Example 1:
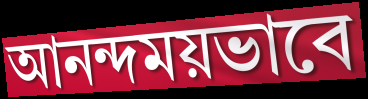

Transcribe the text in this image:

আনন্দময়ভাবে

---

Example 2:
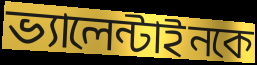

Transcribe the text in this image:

ভ্যালেন্টাইনকে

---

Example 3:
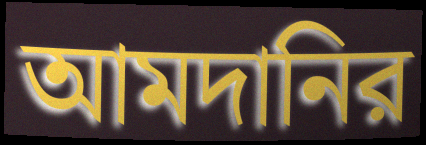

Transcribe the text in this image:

আমদানির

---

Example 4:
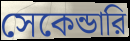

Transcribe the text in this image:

সেকেন্ডারি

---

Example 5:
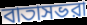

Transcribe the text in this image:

বাতাসভরা